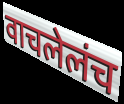
वाचलेलंच